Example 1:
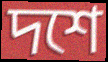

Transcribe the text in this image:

দশে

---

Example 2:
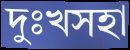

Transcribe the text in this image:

দুঃখসহা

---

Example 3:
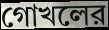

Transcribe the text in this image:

গোখলের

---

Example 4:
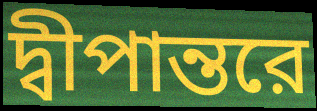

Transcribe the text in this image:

দ্বীপান্তরে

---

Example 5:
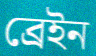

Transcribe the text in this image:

ব্রেইন